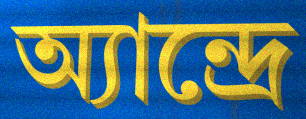
অ্যান্দ্রে